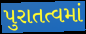
પુરાતત્વમાં